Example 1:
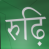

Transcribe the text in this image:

रुढ़ि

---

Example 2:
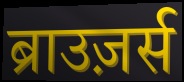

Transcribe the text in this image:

ब्राउज़र्स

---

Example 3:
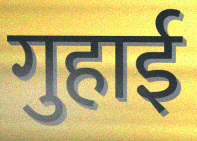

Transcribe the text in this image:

गुहाई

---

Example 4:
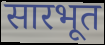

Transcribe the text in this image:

सारभूत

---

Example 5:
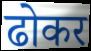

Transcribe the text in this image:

ढोकर